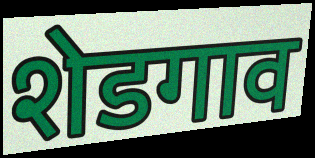
शेडगाव